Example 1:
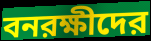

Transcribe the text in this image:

বনরক্ষীদের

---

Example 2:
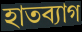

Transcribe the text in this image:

হাতব্যাগ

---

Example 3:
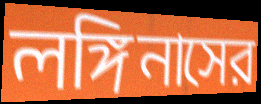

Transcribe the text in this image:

লঙ্গিনাসের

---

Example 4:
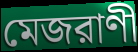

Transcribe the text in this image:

মেজরাণী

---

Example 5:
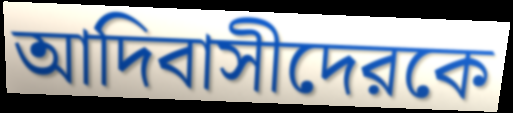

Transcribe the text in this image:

আদিবাসীদেরকে